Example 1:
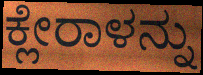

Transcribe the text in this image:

ಕ್ಲೇರಾಳನ್ನು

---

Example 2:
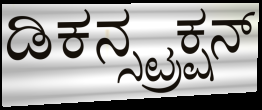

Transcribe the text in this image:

ಡಿಕನ್ಸ್ಟ್ರಕ್ಷನ್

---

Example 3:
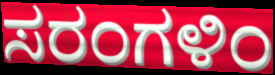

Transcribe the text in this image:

ಸರಂಗಳಿಂ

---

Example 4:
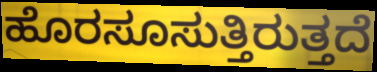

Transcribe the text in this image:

ಹೊರಸೂಸುತ್ತಿರುತ್ತದೆ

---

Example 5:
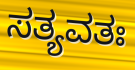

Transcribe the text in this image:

ಸತ್ಯವತಃ